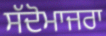
ਸੱਦੋਮਾਜਰਾ